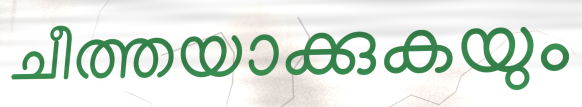
ചീത്തയാക്കുകയും